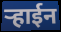
ऱ्हाईन